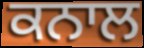
ਕਨਾਲ